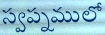
స్వప్నములో